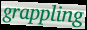
grappling